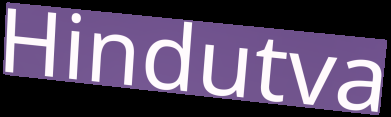
Hindutva